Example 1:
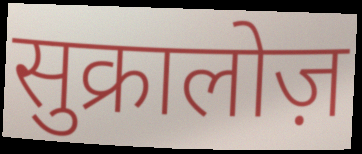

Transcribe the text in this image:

सुक्रालोज़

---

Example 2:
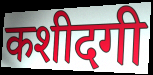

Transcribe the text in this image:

कशीदगी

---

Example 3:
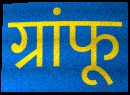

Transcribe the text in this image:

ग्रांफू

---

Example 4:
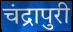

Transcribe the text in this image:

चंद्रापुरी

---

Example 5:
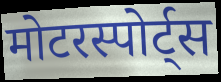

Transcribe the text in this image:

मोटरस्पोर्ट्स